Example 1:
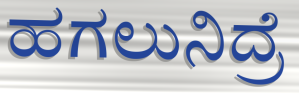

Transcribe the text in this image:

ಹಗಲುನಿದ್ರೆ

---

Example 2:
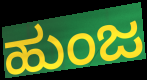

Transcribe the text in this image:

ಹುಂಜ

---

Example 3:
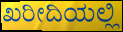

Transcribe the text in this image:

ಖರೀದಿಯಲ್ಲಿ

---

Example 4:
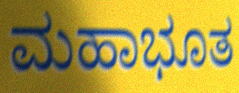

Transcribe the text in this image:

ಮಹಾಭೂತ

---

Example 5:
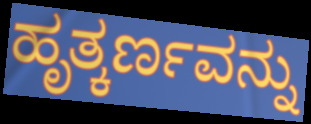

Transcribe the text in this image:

ಹೃತ್ಕರ್ಣವನ್ನು